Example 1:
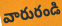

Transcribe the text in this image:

వారురండి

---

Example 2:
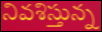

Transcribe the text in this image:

నివశిస్తున్న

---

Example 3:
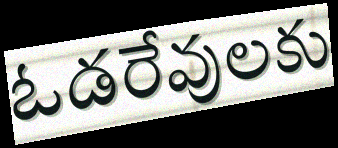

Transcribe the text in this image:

ఓడరేవులకు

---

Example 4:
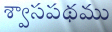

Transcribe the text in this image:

శ్వాసపథము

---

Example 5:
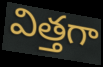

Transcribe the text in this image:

విత్తగా